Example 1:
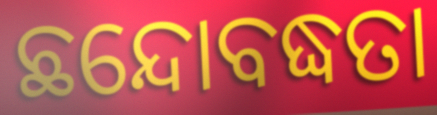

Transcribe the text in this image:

ଛନ୍ଦୋବଦ୍ଧତା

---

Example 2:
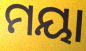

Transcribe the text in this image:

ମୟା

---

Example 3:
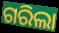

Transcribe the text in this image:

ଗରିଲା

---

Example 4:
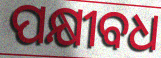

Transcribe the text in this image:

ପକ୍ଷୀବଧ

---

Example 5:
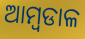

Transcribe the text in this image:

ଆମ୍ବଡାଳ